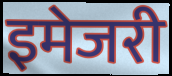
इमेजरी